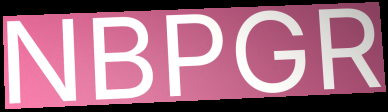
NBPGR